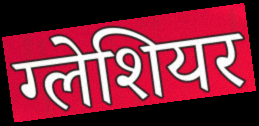
ग्लेशियर